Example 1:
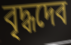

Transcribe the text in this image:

বৃদ্ধদেব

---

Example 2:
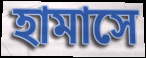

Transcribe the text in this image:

হামাসে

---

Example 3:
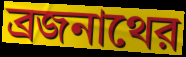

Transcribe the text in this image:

ব্রজনাথের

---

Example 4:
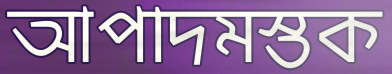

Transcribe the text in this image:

আপাদমস্তক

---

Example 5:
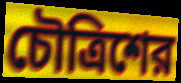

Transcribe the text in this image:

চৌত্রিশের